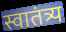
स्‍वातंत्र्य